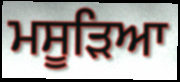
ਮਸੂੜਿਆ